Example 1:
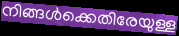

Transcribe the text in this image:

നിങ്ങൾക്കെതിരേയുള്ള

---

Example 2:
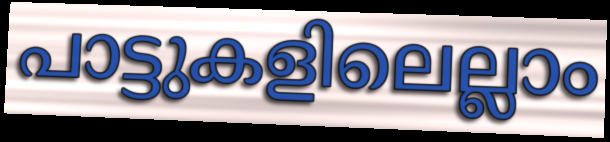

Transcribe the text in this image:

പാട്ടുകളിലെല്ലാം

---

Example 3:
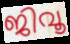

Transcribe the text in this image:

ജിവൂ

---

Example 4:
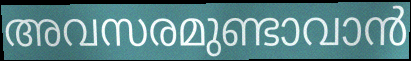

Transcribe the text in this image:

അവസരമുണ്ടാവാൻ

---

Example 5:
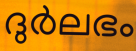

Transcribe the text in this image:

ദുർലഭം